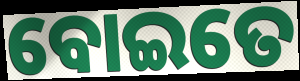
ବୋଇତେ